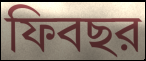
ফিবছর